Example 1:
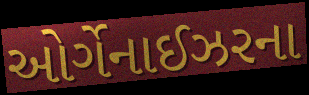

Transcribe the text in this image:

ઓર્ગેનાઈઝરના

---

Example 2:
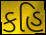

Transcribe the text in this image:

કહિ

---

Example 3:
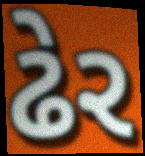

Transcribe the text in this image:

ઢેર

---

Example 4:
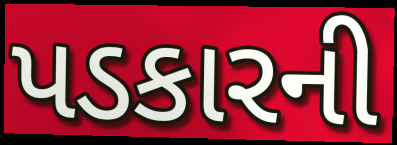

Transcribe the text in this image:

પડકારની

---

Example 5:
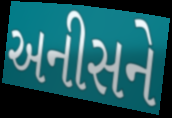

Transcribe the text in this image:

અનીસને